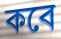
কবে